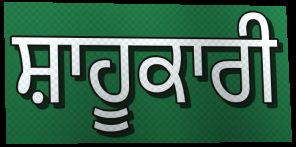
ਸ਼ਾਹੂਕਾਰੀ